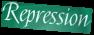
Repression